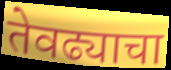
तेवढ्याचा